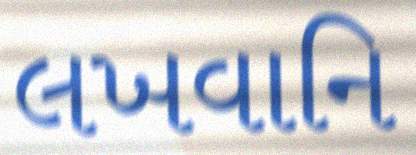
લખવાનિ